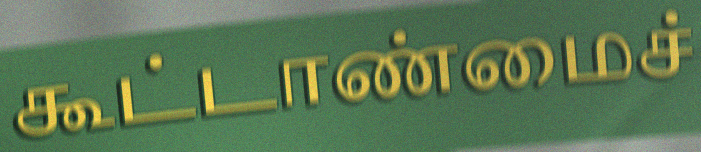
கூட்டாண்மைச்